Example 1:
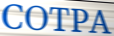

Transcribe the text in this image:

COTPA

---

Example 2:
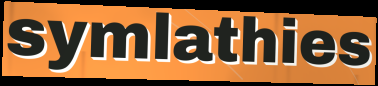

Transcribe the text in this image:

symlathies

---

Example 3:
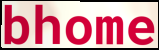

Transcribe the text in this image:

bhome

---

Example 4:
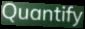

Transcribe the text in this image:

Quantify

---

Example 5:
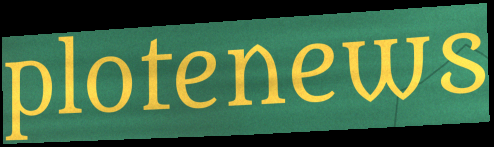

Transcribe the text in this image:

plotenews